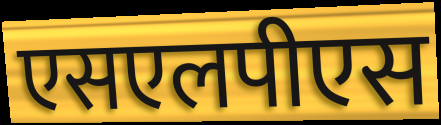
एसएलपीएस